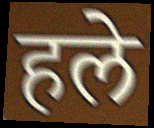
हले